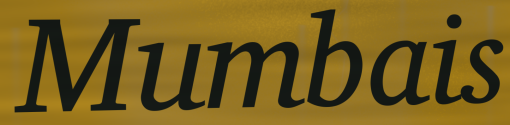
Mumbais